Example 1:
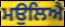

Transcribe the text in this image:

ਮਉਲਿਐ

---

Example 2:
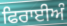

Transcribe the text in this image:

ਫਿਰਾਈਅੰ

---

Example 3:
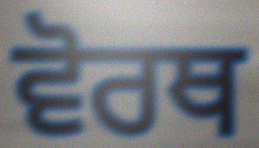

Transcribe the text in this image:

ਵੋਰਥ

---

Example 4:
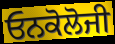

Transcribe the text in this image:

ਓਨਕੋਲੋਜੀ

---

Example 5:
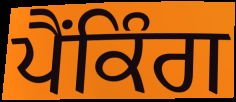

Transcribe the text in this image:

ਪੈਂਕਿੰਗ